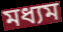
মধ্যম